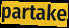
partake